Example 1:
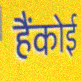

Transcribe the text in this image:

हैंकोई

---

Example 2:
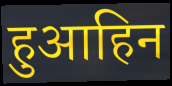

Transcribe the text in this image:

हुआहिन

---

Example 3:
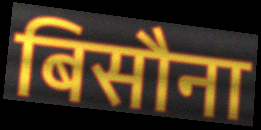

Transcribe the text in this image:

बिसौना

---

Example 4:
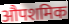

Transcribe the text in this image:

औपशमिक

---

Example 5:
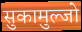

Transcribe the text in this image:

सुकामुल्जो